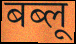
बब्लू